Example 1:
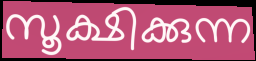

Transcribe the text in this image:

സൂക്ഷിക്കുന്ന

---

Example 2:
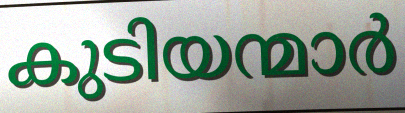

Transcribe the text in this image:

കുടിയന്മാർ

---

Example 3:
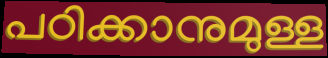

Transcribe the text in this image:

പഠിക്കാനുമുള്ള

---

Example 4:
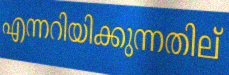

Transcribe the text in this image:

എന്നറിയിക്കുന്നതില്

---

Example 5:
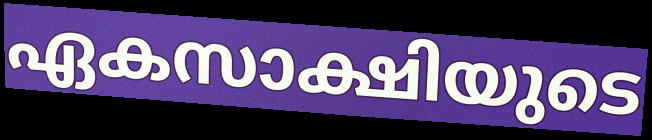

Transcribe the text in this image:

ഏകസാക്ഷിയുടെ